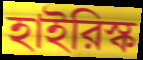
হাইরিস্ক